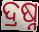
ଦ୍ରଷ୍ନ